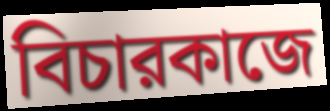
বিচারকাজে